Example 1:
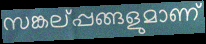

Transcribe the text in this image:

സങ്കല്പ്പങ്ങളുമാണ്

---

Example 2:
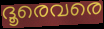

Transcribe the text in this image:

ദൂരെവരെ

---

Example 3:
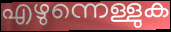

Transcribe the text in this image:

എഴുന്നെള്ളുക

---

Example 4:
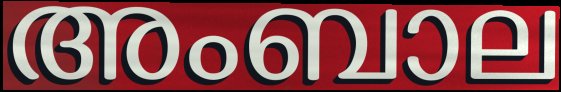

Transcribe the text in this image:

അംബാല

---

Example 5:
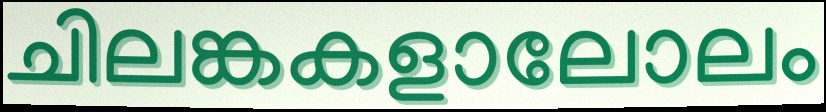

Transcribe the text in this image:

ചിലങ്കകളാലോലം